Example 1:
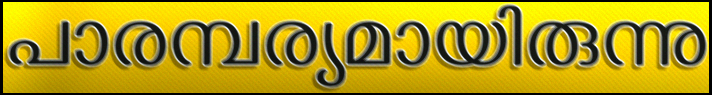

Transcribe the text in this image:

പാരമ്പര്യമായിരുന്നു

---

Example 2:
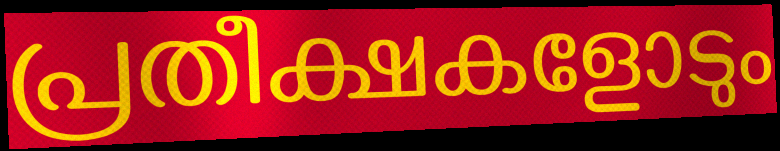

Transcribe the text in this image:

പ്രതീക്ഷകളോടും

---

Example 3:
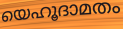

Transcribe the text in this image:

യെഹൂദാമതം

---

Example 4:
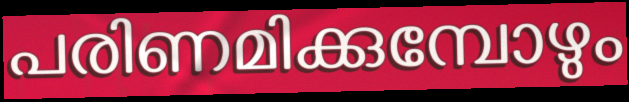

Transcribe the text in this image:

പരിണമിക്കുമ്പോഴും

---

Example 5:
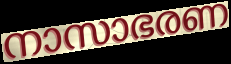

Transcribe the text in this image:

നാസാഭരണ